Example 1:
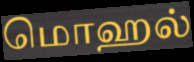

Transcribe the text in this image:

மொஹல்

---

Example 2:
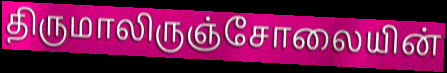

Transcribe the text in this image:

திருமாலிருஞ்சோலையின்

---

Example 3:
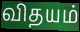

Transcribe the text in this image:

விதயம்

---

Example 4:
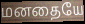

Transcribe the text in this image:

மனதையே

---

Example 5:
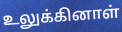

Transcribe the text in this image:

உலுக்கினாள்